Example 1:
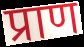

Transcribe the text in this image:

प्राण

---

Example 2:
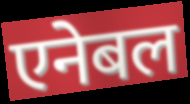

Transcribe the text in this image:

एनेबल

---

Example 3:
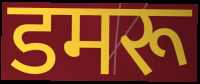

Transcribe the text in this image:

डमरू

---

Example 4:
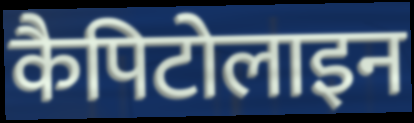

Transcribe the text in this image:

कैपिटोलाइन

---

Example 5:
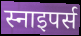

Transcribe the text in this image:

स्नाइपर्स